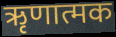
ऋृणात्मक